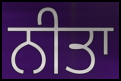
ਨੀਤਾ